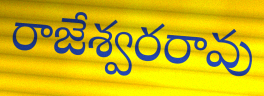
రాజేశ్వరరావు